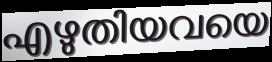
എഴുതിയവയെ